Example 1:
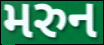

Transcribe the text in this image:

મરુન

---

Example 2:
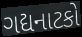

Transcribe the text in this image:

ગદ્યનાટકો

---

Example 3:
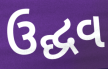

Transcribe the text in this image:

ઉદ્ઘવ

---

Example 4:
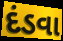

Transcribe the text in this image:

દંડવા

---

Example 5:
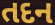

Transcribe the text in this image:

તદન